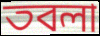
তবলা